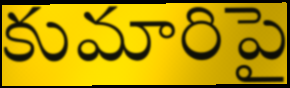
కుమారిపై